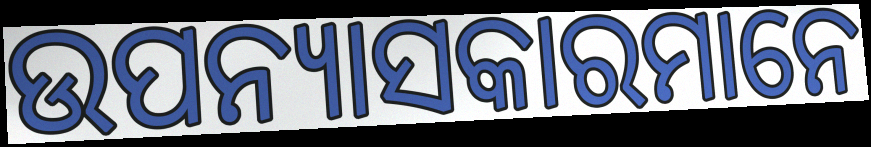
ଉପନ୍ୟାସକାରମାନେ